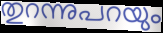
തുറന്നുപറയും